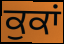
ਕੁਕਾਂ